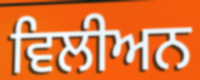
ਵਿਲੀਅਨ